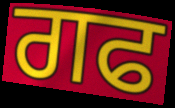
ਗਫ